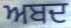
ਅਬਦ